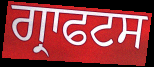
ਗ੍ਰਾਫਟਸ